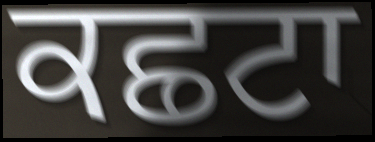
ਕਛਟਾ